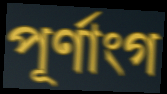
পূৰ্ণাংগ